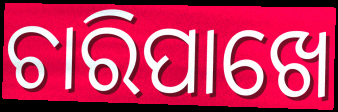
ଚାରିପାଖେ